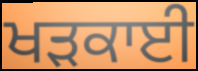
ਖੜਕਾਈ